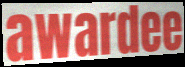
awardee